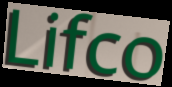
Lifco